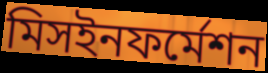
মিসইনফর্মেশন